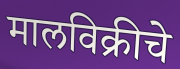
मालविक्रीचे